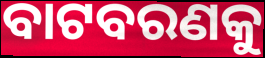
ବାଟବରଣକୁ